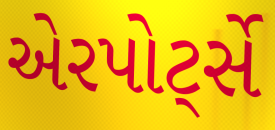
એરપોર્ટ્સે